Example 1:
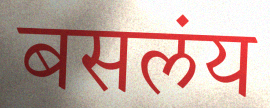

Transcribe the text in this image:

बसलंय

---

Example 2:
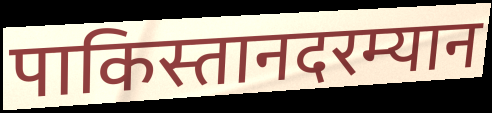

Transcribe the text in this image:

पाकिस्तानदरम्यान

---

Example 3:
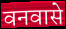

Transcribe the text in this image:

वनवासे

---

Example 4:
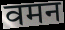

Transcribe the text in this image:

वमन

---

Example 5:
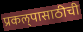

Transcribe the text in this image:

प्रकल्पासाठीची